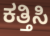
ಕತ್ತಿಸಿ